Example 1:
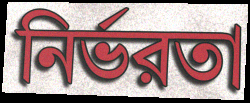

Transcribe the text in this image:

নির্ভরতা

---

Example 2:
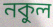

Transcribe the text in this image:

নকুল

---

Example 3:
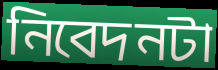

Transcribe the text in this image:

নিবেদনটা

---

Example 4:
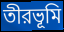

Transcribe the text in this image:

তীরভূমি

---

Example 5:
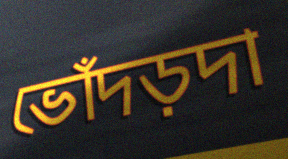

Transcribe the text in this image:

ভোঁদড়দা